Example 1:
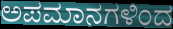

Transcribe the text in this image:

ಅಪಮಾನಗಳಿಂದ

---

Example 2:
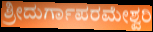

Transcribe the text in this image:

ಶ್ರೀದುರ್ಗಾಪರಮೇಶ್ವರಿ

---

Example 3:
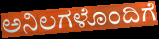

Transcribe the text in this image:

ಅನಿಲಗಳೊಂದಿಗೆ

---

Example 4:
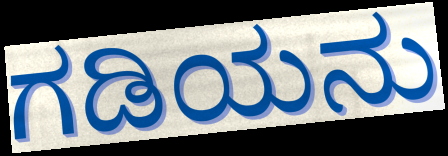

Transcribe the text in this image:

ಗಡಿಯನು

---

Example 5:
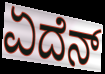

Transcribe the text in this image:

ಏದೆನ್